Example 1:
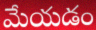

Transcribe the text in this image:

మేయడం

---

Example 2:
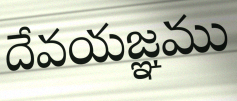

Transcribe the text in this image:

దేవయజ్ఞము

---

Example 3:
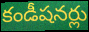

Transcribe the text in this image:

కండీషనర్లు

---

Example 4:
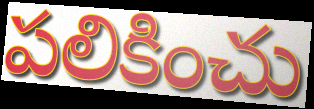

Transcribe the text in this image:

పలికించు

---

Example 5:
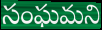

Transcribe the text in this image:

సంఘమని